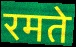
रमते